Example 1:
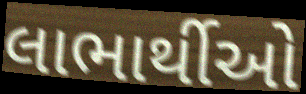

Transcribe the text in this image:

લાભાર્થીઓ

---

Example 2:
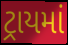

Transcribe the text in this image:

ટ્રાયમાં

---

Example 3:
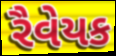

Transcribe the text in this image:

રૈવેયક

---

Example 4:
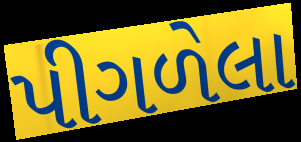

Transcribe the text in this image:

પીગળેલા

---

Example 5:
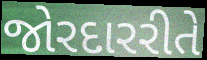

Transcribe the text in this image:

જોરદારરીતે